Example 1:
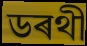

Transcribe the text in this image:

ডৰথী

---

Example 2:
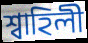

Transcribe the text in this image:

শ্বাহিলী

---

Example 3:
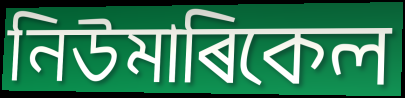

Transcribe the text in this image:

নিউমাৰিকেল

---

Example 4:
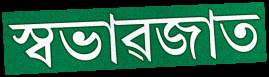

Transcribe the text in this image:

স্বভাৱজাত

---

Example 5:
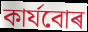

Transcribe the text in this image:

কাৰ্যবোৰ